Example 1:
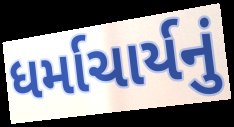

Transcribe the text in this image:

ધર્માચાર્યનું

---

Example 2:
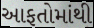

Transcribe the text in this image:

આફતોમાંથી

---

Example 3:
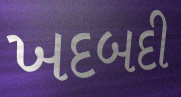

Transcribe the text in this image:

ખદબદી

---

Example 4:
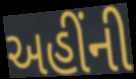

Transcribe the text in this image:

અહીંની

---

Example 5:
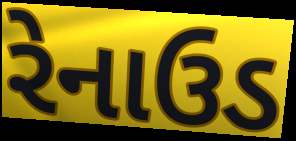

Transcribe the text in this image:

રેનાઉડ